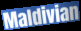
Maldivian